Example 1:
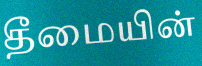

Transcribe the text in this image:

தீமையின்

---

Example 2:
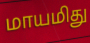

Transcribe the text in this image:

மாயமிது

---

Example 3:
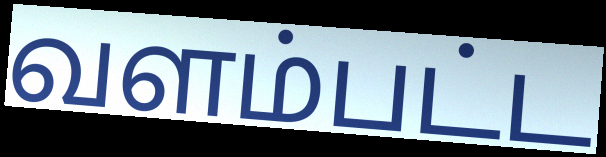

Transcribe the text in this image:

வளம்பட்ட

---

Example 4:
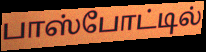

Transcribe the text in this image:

பாஸ்போட்டில்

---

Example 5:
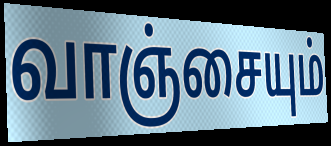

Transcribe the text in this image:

வாஞ்சையும்